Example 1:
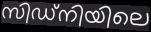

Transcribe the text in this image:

സിഡ്നിയിലെ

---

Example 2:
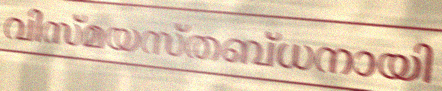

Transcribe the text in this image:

വിസ്മയസ്തബ്ധനായി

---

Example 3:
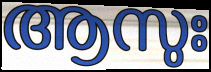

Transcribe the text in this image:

ആസുഃ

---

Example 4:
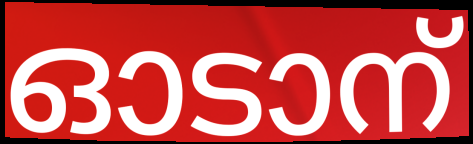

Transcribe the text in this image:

ഓടാന്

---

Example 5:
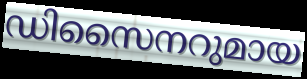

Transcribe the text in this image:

ഡിസൈനറുമായ